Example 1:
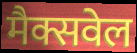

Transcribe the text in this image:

मैक्सवेल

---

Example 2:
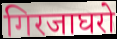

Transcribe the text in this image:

गिरजाघरो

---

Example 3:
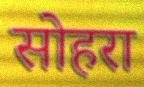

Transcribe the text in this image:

सोहरा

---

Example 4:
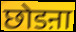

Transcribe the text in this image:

छोडऩा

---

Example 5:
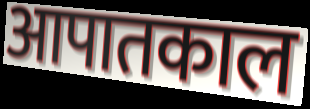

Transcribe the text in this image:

आपातकाल